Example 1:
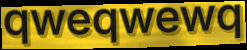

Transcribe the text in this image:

qweqwewq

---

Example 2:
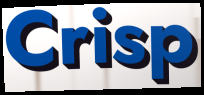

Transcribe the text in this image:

Crisp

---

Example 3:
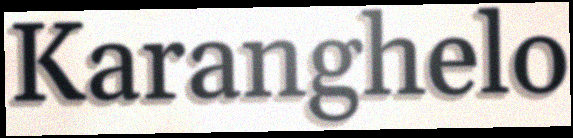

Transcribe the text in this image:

Karanghelo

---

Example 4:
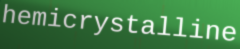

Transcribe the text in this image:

hemicrystalline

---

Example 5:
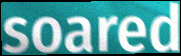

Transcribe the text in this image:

soared